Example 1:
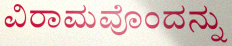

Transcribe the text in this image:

ವಿರಾಮವೊಂದನ್ನು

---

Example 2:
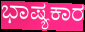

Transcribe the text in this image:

ಭಾಷ್ಯಕಾರ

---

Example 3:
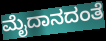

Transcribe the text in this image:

ಮೈದಾನದಂತೆ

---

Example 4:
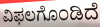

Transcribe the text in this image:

ವಿಫಲಗೊಂಡಿದೆ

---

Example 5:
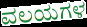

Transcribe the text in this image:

ವಲಯಗಳ